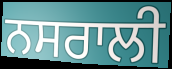
ਨਸਰਾਲੀ